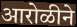
आरोळीने